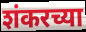
शंकरच्या